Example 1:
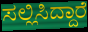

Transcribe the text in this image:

ಸಲ್ಲಿಸಿದ್ದಾರೆ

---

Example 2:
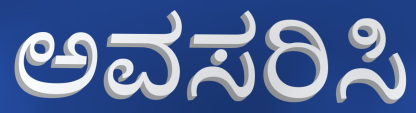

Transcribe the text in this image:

ಅವಸರಿಸಿ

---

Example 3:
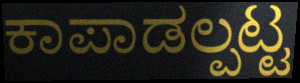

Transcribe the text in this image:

ಕಾಪಾಡಲ್ಪಟ್ಟ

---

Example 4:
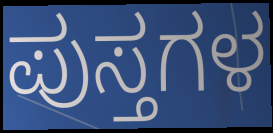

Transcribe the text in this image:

ಪುಸ್ತಗಳ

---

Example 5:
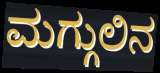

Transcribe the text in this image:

ಮಗ್ಗುಲಿನ